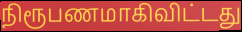
நிரூபணமாகிவிட்டது